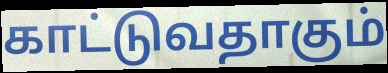
காட்டுவதாகும்